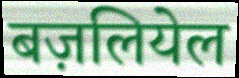
बज़लियेल